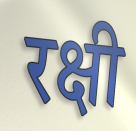
रक्षी